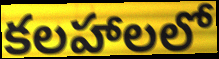
కలహాలలో